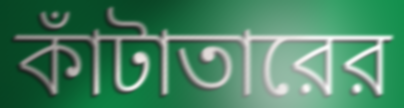
কাঁটাতারের